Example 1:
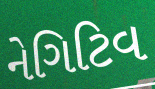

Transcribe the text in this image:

નેગિટિવ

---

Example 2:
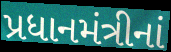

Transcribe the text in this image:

પ્રધાનમંત્રીનાં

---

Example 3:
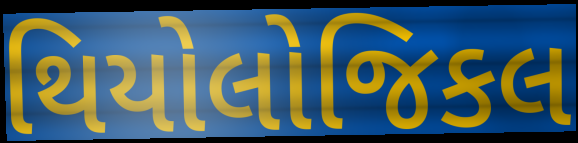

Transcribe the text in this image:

થિયોલોજિકલ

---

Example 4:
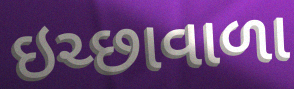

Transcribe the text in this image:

ઇચ્છાવાળા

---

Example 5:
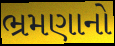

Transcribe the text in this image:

ભ્રમણાનો